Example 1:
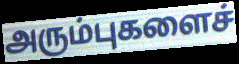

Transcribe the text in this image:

அரும்புகளைச்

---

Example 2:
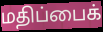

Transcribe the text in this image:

மதிப்பைக்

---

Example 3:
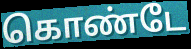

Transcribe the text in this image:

கொண்டே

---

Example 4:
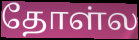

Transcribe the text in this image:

தோள்ல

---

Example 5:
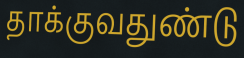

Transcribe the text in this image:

தாக்குவதுண்டு